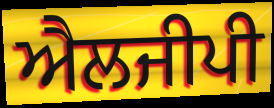
ਐਲਜੀਪੀ